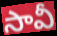
సావీ